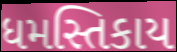
ધમસ્તિકાય